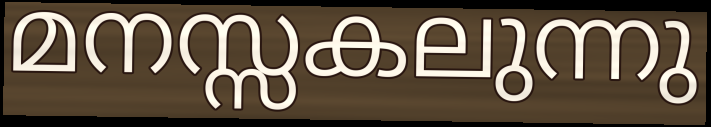
മനസ്സകലുന്നു